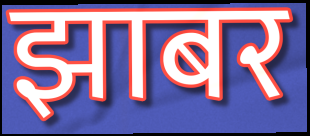
झाबर